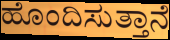
ಹೊಂದಿಸುತ್ತಾನೆ